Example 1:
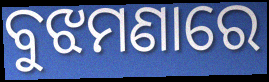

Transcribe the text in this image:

ବୁଝମଣାରେ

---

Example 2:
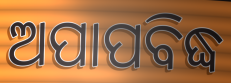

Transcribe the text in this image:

ଅପାପବିଦ୍ଧ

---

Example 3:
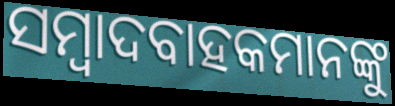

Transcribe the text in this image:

ସମ୍ବାଦବାହକମାନଙ୍କୁ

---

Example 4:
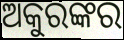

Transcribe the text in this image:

ଅକୁରଙ୍କର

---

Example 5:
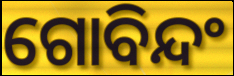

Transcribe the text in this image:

ଗୋବିନ୍ଦଂ